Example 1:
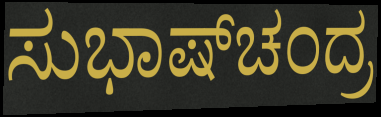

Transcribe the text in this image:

ಸುಭಾಷ್‌ಚಂದ್ರ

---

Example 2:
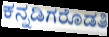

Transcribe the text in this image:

ಕನ್ನಡಿಗರೊಡತಿ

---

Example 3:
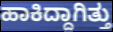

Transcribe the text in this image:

ಹಾಕಿದ್ದಾಗಿತ್ತು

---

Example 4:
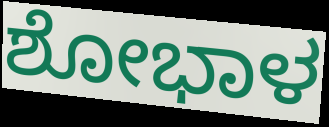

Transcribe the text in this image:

ಶೋಭಾಳ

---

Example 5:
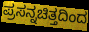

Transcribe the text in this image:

ಪ್ರಸನ್ನಚಿತ್ತದಿಂದ